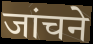
जांचने